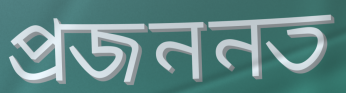
প্ৰজননত